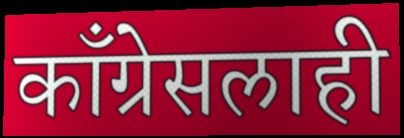
काँग्रेसलाही